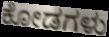
ಕೋಡಗಳು